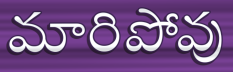
మారిపోవు